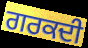
ਗਰਕਦੀ